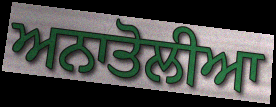
ਅਨਾਤੋਲੀਆ